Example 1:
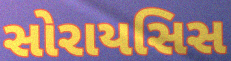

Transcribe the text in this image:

સોરાયસિસ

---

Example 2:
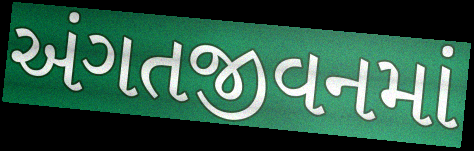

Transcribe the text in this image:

અંગતજીવનમાં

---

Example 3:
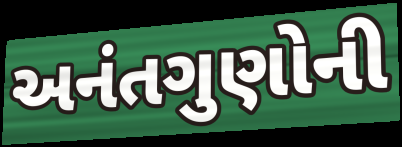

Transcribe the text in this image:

અનંતગુણોની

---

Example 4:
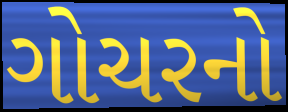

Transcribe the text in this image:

ગોચરનો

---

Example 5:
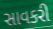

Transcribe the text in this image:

સાવકરી